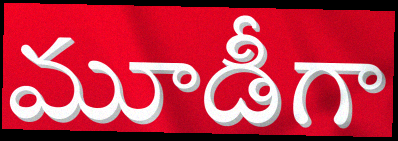
మూడీగా